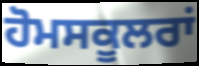
ਹੋਮਸਕੂਲਰਾਂ